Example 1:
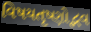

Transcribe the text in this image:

વિષયતૃષ્ણોદ્ભવ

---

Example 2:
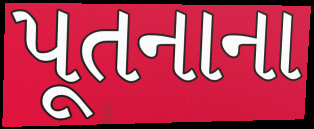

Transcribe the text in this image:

પૂતનાના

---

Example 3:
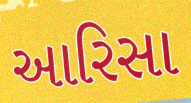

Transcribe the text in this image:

આરિસા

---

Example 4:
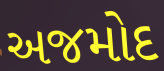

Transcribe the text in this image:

અજમોદ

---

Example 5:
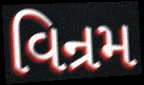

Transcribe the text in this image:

વિન્રમ